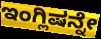
ಇಂಗ್ಲಿಷನ್ನೇ